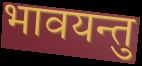
भावयन्तु